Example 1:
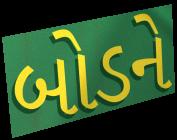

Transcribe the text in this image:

બોડને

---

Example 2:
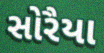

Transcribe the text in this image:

સોરૈયા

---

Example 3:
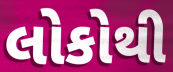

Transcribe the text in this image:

લોકોથી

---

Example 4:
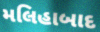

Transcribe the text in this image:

મલિહાબાદ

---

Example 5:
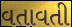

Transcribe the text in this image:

વતાવતી